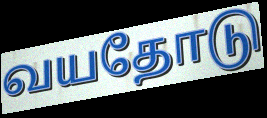
வயதோடு